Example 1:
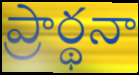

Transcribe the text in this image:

ప్రార్థనా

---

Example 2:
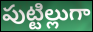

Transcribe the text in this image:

పుట్టిల్లుగా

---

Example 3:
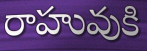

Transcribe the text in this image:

రాహువుకి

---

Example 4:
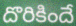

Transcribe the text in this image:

దొరికిందే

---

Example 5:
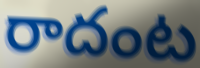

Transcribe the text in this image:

రాదంట